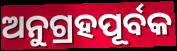
ଅନୁଗ୍ରହପୂର୍ବକ